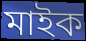
মাইক